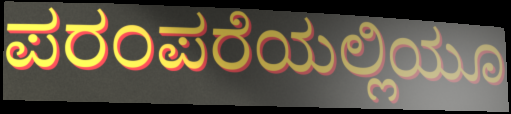
ಪರಂಪರೆಯಲ್ಲಿಯೂ